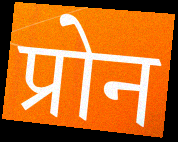
प्रोन